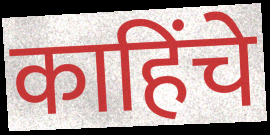
काहिंचे